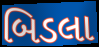
બિડલા